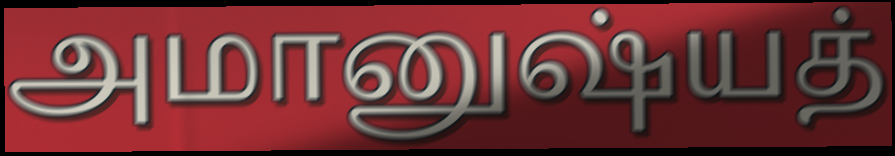
அமானுஷ்யத்